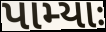
પામ્યાઃ